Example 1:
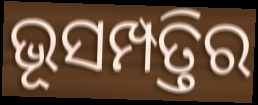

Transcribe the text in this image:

ଭୂସମ୍ପତ୍ତିର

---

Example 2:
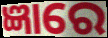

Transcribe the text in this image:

ଜ୍ଞାରେ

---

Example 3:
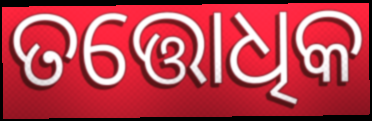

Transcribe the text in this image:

ତତ୍ତୋଧିକ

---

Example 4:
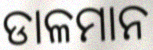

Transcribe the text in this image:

ଡାଳମାନ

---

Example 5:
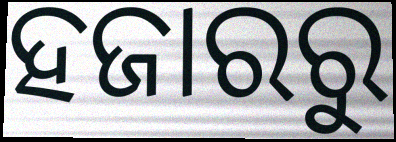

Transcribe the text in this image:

ହଜାରରୁ